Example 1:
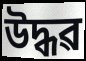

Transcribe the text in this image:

উদ্ধৱ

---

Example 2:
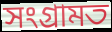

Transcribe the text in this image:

সংগ্ৰামত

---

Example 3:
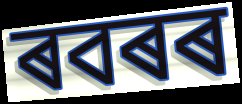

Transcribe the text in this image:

ৰবৰৰ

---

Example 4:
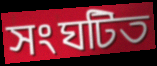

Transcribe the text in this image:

সংঘটিত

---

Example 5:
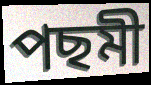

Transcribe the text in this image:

পছমী